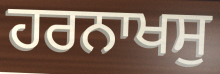
ਹਰਨਾਖਸੁ